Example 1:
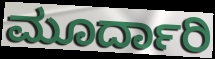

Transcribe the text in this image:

ಮೂರ್ದಾರಿ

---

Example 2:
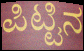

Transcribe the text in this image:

ಪಿಟ್ಟಿನ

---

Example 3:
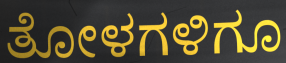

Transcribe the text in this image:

ತೋಳಗಳಿಗೂ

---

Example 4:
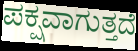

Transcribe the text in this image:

ಪಕ್ಷವಾಗುತ್ತದೆ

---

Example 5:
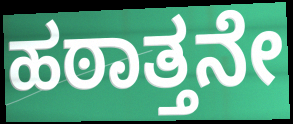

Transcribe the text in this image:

ಹಠಾತ್ತನೇ